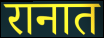
रानात